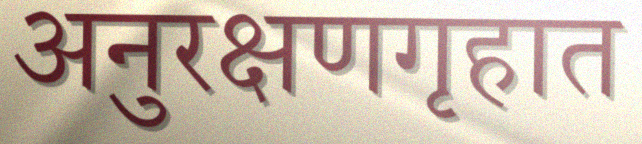
अनुरक्षणगृहात